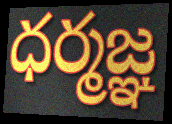
ధర్మజ్ఞ